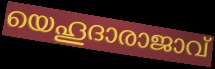
യെഹൂദാരാജാവ്